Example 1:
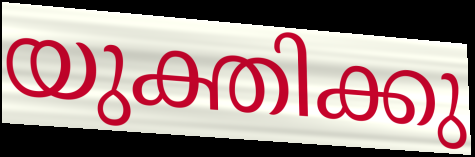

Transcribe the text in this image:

യുക്തിക്കു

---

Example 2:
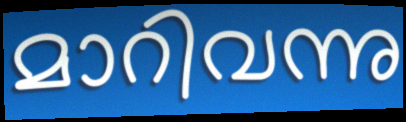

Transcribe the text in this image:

മാറിവന്നു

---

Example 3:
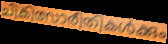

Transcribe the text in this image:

ചികിത്സാരീതികൾക്കും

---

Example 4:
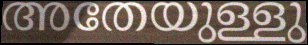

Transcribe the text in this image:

അതേയുള്ളു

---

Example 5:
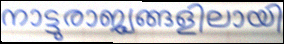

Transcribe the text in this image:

നാട്ടുരാജ്യങ്ങളിലായി